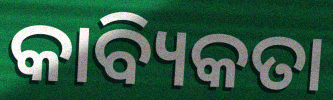
କାବ୍ୟିକତା